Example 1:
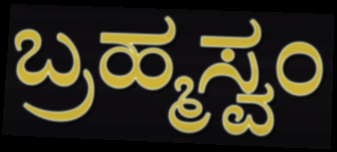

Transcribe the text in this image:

ಬ್ರಹ್ಮಸ್ವಂ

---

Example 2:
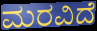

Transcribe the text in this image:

ಮರವಿದೆ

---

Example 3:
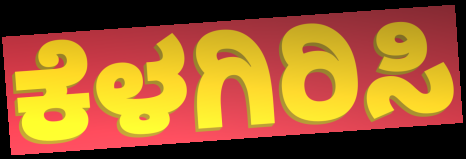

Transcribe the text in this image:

ಕೆಳಗಿರಿಸಿ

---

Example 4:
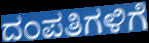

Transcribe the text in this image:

ದಂಪತಿಗಳಿಗೆ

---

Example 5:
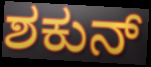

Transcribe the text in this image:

ಶಕುನ್